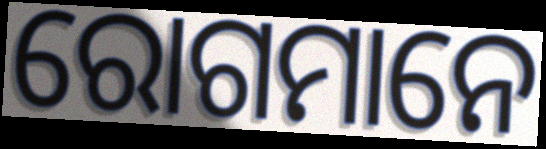
ରୋଗମାନେ